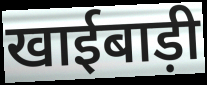
खाईबाड़ी